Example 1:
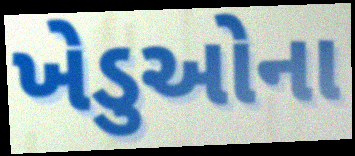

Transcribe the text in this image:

ખેડુઓના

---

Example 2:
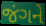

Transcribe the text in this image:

જંગને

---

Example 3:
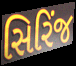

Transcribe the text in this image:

સિરિંજ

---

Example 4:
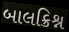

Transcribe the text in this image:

બાલક્રિશ્ન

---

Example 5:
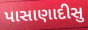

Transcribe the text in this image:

પાસાણાદીસુ